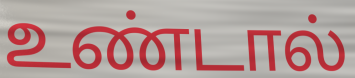
உண்டால்